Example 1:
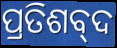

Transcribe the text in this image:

ପ୍ରତିଶବ୍‌ଦ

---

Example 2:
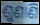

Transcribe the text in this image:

ଶୁଣାଣି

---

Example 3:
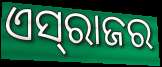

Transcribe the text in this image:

ଏସ୍‍ରାଜର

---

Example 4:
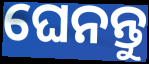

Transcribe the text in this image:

ଘେନନ୍ତୁ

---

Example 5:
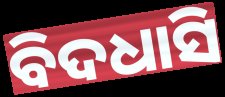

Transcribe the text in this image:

ବିଦଧାସି